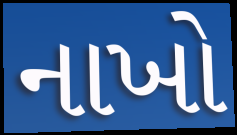
નાખો